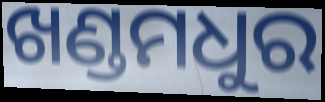
ଖଣ୍ଡମଧୁର